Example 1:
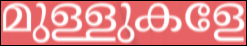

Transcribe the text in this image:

മുള്ളുകളേ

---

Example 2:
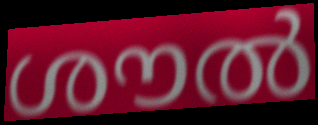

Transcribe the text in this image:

ശൗൽ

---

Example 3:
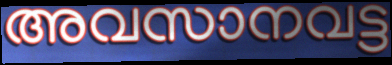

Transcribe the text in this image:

അവസാനവട്ട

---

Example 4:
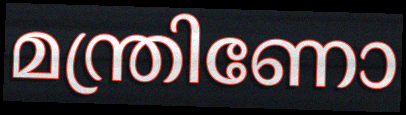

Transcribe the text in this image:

മന്ത്രിണോ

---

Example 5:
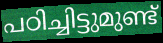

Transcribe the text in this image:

പഠിച്ചിട്ടുമുണ്ട്